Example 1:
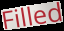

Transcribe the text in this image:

Filled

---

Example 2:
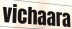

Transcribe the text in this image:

vichaara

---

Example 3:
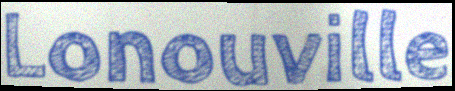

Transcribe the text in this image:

Lonouville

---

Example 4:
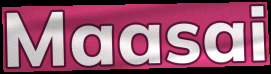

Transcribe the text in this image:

Maasai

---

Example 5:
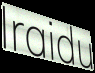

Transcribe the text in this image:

Iraidu